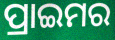
ପ୍ରାଇମର